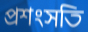
প্রশংসতি